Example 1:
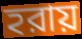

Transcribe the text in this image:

হরায়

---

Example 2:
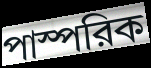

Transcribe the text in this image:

পাস্পরিক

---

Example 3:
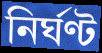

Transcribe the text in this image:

নির্ঘণ্ট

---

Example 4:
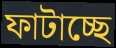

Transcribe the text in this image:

ফাটাচ্ছে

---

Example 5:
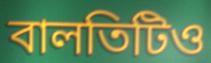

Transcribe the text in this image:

বালতিটিও